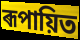
ৰূপায়িত